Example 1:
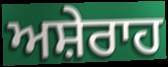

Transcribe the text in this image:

ਅਸ਼ੇਰਾਹ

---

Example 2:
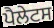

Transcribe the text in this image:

ਪੈਲੇਟਸ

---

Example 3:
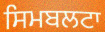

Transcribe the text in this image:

ਸਿਮਬਲਟਾ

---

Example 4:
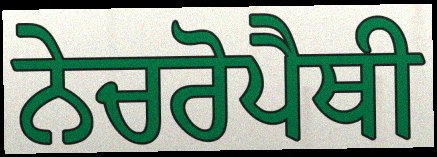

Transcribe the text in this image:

ਨੇਚਰੋਪੈਥੀ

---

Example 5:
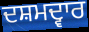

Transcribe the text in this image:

ਦਸ਼ਮਦ੍ਵਾਰ